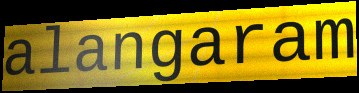
alangaram